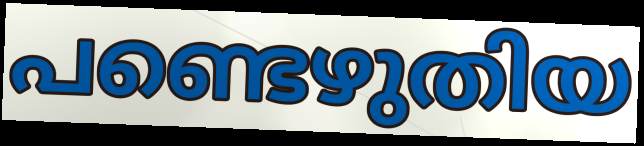
പണ്ടെഴുതിയ